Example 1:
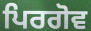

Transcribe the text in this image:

ਪਿਰਗੋਵ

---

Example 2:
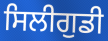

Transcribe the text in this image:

ਸਿਲੀਗੁਡੀ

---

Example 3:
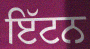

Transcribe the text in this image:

ਇੱਟਨ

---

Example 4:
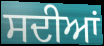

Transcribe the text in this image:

ਸਦੀਆਂ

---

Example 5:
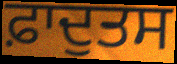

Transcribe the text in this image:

ਫ਼ਾਦੁਤਸ